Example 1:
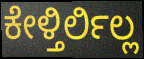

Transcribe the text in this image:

ಕೇಳ್ತಿರ್ಲಿಲ್ಲ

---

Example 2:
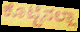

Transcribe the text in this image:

ಕೊಟ್ಟೆನಲ್ಲಾ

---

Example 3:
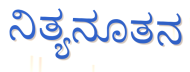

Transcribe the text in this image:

ನಿತ್ಯನೂತನ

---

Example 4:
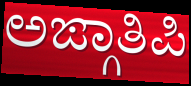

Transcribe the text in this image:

ಅಙ್ಗಾತಿಪಿ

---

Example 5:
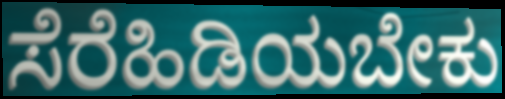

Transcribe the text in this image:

ಸೆರೆಹಿಡಿಯಬೇಕು